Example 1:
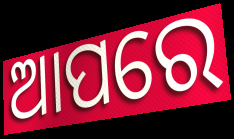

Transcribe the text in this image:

ଆପରେ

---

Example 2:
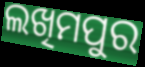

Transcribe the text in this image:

ଲଖିମପୁର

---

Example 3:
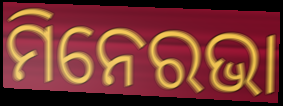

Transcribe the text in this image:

ମିନେରଭା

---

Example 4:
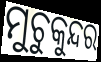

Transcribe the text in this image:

ମୁଚୁକୁନ୍ଦର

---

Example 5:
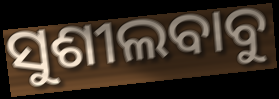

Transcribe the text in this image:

ସୁଶୀଲବାବୁ